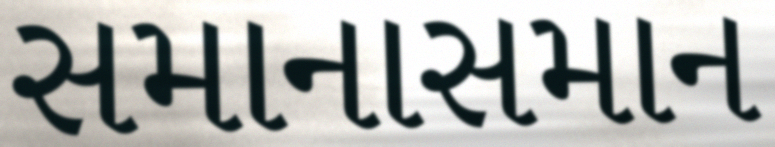
સમાનાસમાન